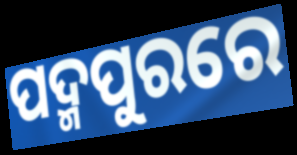
ପଦ୍ମପୁରରେ